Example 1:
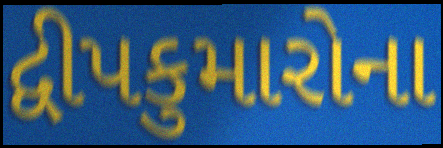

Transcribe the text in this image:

દ્વીપકુમારોના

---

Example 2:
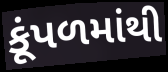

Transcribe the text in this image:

કૂંપળમાંથી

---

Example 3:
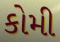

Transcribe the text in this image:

કોમી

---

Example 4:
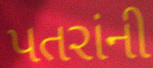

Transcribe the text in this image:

પતરાંની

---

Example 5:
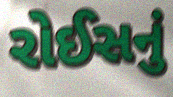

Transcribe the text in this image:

રોઈસનું